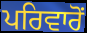
ਪਰਿਵਾਰੋਂ